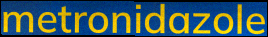
metronidazole